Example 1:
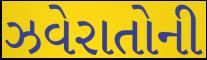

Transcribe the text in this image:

ઝવેરાતોની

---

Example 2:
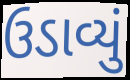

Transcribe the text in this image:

ઉડાવ્યું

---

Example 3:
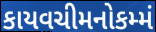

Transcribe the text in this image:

કાયવચીમનોકમ્મં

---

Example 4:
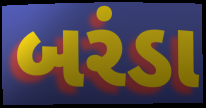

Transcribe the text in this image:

બરંડા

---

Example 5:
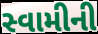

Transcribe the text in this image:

સ્વામીની